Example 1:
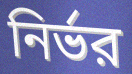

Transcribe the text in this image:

নির্ভর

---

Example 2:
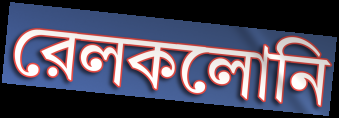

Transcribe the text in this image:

রেলকলোনি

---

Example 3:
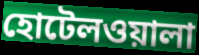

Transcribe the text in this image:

হোটেলওয়ালা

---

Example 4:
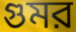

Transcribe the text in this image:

গুমর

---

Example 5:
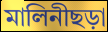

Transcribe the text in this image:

মালিনীছড়া